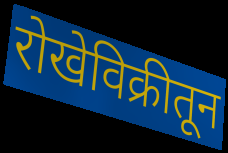
रोखेविक्रीतून